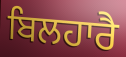
ਬਿਲਹਾਰੈ